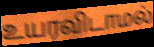
உயரவிடாமல்